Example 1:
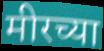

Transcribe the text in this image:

मीरच्या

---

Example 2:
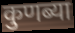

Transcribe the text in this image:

कुणब्या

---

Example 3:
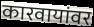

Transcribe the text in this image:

कारवायांवर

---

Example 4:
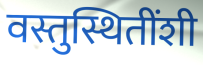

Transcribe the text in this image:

वस्तुस्थितींशी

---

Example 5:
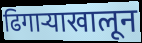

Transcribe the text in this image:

ढिगाऱ्याखालून